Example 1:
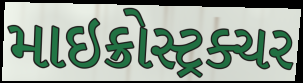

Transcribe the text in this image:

માઇક્રોસ્ટ્રક્ચર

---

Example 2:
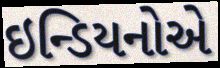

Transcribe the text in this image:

ઇન્ડિયનોએ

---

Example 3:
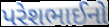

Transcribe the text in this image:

પરેશભાઈનો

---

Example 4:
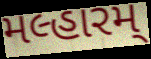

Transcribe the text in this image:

મલ્હારમ્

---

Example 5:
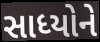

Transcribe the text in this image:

સાધ્યોને